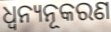
ଧ୍ୱନ୍ୟନୂକରଣ